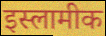
इस्लामीक